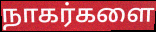
நாகர்களை